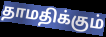
தாமதிக்கும்